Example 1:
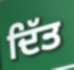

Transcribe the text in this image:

ਦਿੱਤ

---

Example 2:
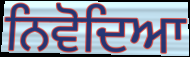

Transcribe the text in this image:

ਨਿਵੋਦਿਆ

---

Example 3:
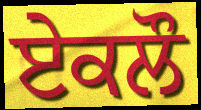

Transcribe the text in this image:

ਏਕਲੌ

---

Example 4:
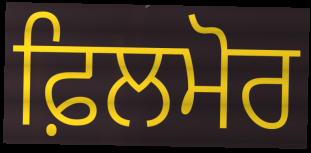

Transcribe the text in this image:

ਫ਼ਿਲਮੋਰ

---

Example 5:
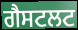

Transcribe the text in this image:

ਗੈਸਟਲਟ